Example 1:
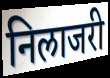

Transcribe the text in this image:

निलाजरी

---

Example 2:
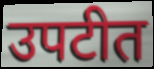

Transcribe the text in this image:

उपटीत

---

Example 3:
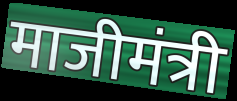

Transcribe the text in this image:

माजीमंत्री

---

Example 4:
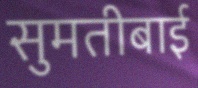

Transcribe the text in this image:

सुमतीबाई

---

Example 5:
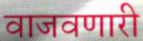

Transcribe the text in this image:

वाजवणारी